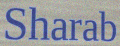
Sharab